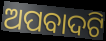
ଅପବାଦଟି